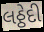
લઠ્ઠેદી